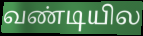
வண்டியில